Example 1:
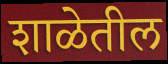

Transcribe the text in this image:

शाळेतील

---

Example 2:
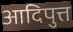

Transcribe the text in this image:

आदिपुत्त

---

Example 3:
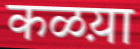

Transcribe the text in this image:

कळय़ा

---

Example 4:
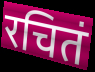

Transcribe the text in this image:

रचितं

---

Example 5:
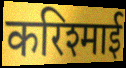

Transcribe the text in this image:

करिश्माई